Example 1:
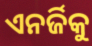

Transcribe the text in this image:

ଏନର୍ଜିକୁ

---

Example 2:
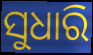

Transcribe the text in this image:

ସୁଧାରି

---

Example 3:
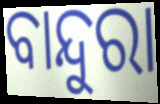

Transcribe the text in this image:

ବାନ୍ଦୁରା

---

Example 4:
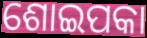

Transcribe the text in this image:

ଶୋଇପକା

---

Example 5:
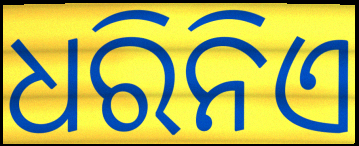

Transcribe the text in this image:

ଧରିନିଏ